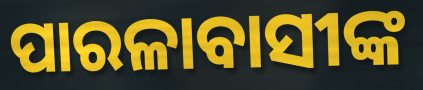
ପାରଳାବାସୀଙ୍କ